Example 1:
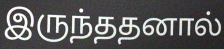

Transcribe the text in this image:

இருந்ததனால்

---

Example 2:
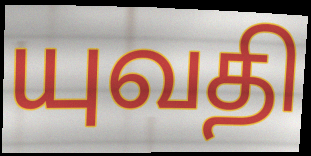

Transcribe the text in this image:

யுவதி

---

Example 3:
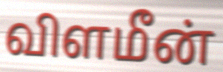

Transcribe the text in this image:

விளமீன்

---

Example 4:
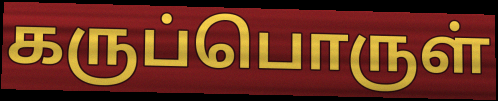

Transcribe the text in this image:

கருப்பொருள்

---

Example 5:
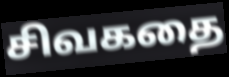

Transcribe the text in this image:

சிவகதை